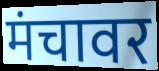
मंचावर